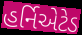
હર્નિએટેડ